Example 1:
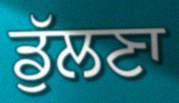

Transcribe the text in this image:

ਡੁੱਲਣਾ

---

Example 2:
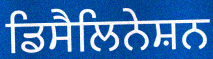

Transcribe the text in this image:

ਡਿਸੈਲਿਨੇਸ਼ਨ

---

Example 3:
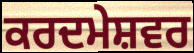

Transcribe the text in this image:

ਕਰਦਮੇਸ਼ਵਰ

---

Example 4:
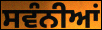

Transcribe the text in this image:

ਸਵੰਨੀਆਂ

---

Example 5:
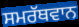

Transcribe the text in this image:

ਸਮਰੱਥਵਾਨ